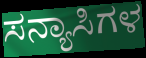
ಸನ್ಯಾಸಿಗಳ